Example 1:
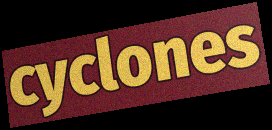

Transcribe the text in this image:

cyclones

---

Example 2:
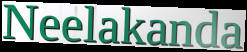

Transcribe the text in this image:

Neelakanda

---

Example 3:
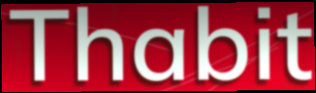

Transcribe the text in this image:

Thabit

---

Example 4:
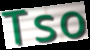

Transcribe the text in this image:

Tso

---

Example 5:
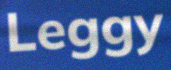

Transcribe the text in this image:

Leggy